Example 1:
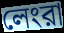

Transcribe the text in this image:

লেংরা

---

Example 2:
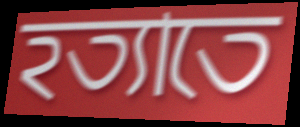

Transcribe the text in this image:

হত্যাতে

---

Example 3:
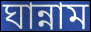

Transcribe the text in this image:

ঘান্নাম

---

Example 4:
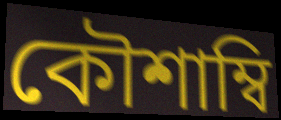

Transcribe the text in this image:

কৌশাম্বি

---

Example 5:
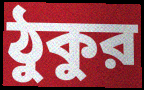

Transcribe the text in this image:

ঠুকুর